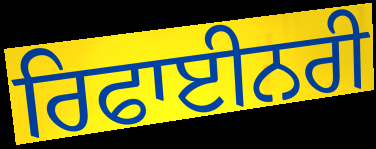
ਰਿਫਾਈਨਰੀ